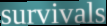
survivals